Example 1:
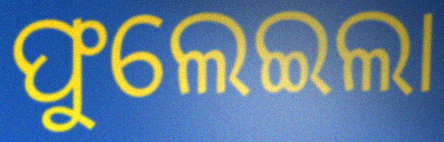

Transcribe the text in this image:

ଫୁଲେଇଲା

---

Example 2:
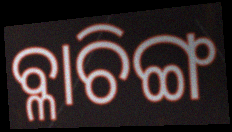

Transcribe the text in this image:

ବ୍ଳାଚିଙ୍ଗ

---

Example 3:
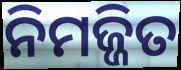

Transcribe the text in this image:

ନିମଜ୍ଜିତ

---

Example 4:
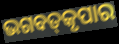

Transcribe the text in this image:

ଭଗବତ୍‌କୃପାର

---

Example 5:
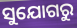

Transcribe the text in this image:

ସୁଯୋଗରୁ